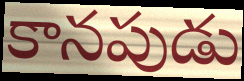
కానపుడు